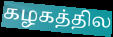
கழகத்தில